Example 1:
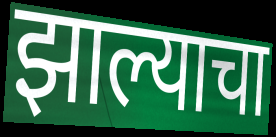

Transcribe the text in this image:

झाल्याचा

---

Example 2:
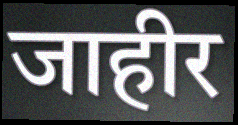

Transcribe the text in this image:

जाहीर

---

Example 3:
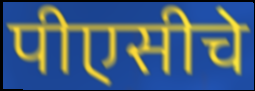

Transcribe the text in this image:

पीएसीचे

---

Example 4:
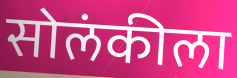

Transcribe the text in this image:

सोलंकीला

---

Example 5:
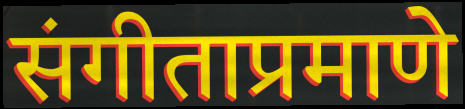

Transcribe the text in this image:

संगीताप्रमाणे